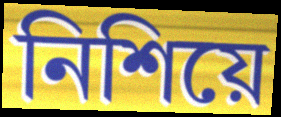
নিশিয়ে